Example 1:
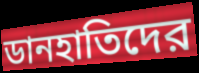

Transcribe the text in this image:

ডানহাতিদের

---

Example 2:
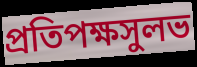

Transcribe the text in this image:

প্রতিপক্ষসুলভ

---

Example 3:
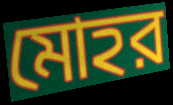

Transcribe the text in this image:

মোহর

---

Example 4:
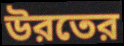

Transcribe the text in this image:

উরতের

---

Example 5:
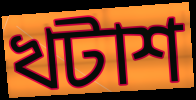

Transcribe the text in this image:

খটাশ